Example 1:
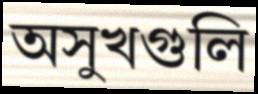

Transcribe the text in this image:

অসুখগুলি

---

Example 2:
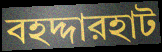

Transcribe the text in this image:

বহদ্দারহাট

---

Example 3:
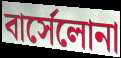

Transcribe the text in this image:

বার্সেলোনা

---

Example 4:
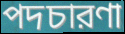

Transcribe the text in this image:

পদচারণা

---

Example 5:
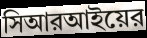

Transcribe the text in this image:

সিআরআইয়ের